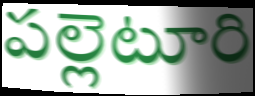
పల్లెటూరి